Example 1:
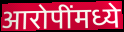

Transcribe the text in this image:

आरोपींमध्ये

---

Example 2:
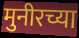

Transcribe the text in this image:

मुनीरच्या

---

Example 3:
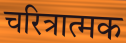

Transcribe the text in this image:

चरित्रात्मक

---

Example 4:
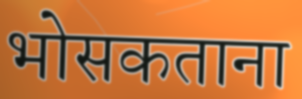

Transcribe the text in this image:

भोसकताना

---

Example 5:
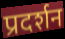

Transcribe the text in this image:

प्रदर्शन